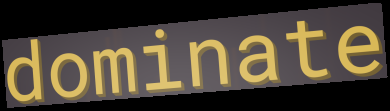
dominate